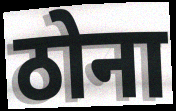
ठोना